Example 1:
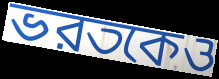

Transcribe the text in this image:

ভরতকেও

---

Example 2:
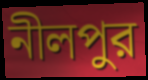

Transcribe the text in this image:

নীলপুর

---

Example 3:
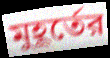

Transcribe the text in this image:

মুহূর্তের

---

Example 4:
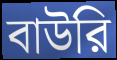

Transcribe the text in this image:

বাউরি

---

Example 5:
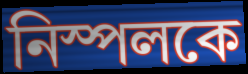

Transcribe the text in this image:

নিস্পলকে